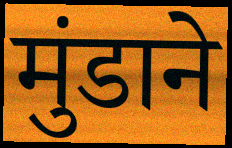
मुंडाने